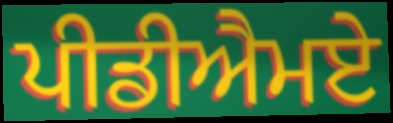
ਪੀਡੀਐਮਏ